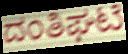
ದಂತಿಘಟೆ